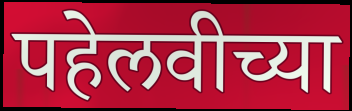
पहेलवीच्या